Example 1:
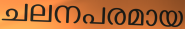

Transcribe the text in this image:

ചലനപരമായ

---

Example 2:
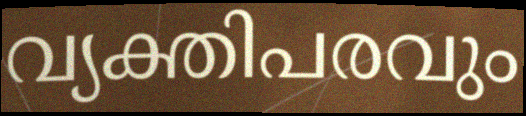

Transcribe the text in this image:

വ്യക്തിപരവും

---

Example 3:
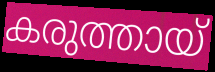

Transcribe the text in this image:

കരുത്തായ്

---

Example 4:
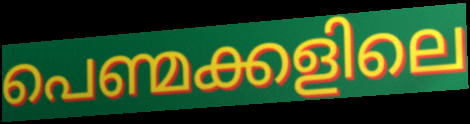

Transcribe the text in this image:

പെണ്മക്കളിലെ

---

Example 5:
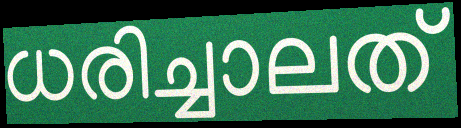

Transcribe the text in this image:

ധരിച്ചാലത്